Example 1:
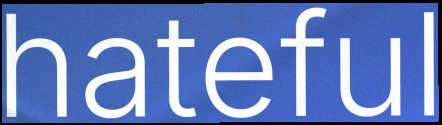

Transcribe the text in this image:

hateful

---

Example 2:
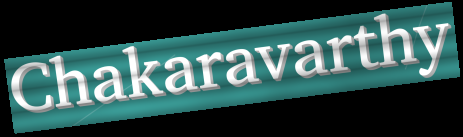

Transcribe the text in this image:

Chakaravarthy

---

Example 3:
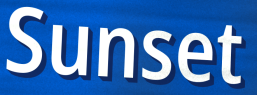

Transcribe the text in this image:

Sunset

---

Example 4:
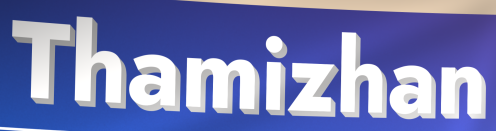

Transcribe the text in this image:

Thamizhan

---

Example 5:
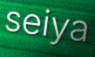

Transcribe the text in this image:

seiya